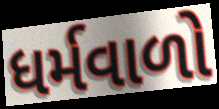
ધર્મવાળો